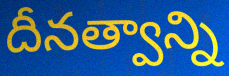
దీనత్వాన్ని